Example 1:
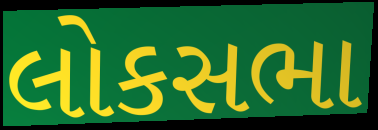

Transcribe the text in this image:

લોકસભા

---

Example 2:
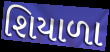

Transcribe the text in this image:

શિયાળા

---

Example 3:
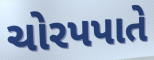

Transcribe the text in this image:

ચોરપપાતે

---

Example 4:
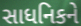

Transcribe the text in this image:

સાધનિકને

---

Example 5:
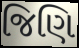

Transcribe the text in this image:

જિણિ